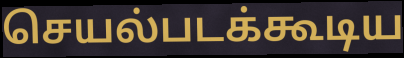
செயல்படக்கூடிய